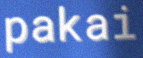
pakai